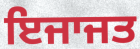
ਇਜਾਜਤ